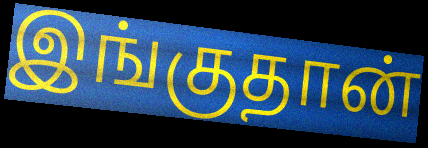
இங்குதான்